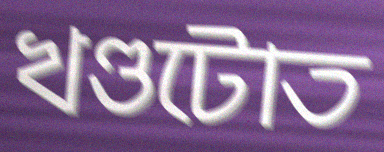
খণ্ডটোত